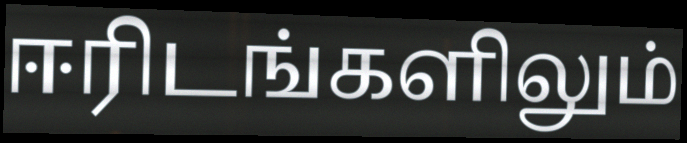
ஈரிடங்களிலும்